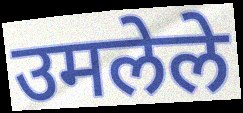
उमलेले